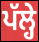
ਪੱਲ੍ਹੇ